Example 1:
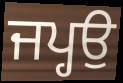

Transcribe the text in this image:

ਜਪ੍ਹਉ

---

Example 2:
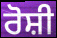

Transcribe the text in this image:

ਰੋਸ਼ੀ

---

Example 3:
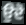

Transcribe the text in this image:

ਉਦੋ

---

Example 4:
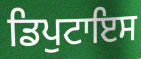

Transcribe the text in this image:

ਡਿਪੁਟਾਇਸ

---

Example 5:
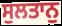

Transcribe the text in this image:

ਸੁਲਤਾਨੁ